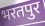
भरतपुर